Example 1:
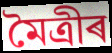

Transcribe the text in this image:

মৈত্ৰীৰ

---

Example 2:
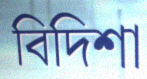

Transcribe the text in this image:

বিদিশা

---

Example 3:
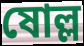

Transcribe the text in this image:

ষোল্ল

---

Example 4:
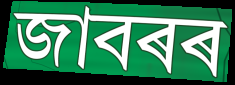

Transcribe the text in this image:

জাবৰৰ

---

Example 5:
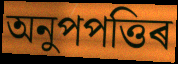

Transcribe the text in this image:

অনুপপত্তিৰ